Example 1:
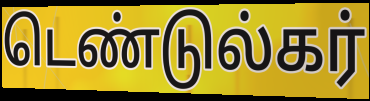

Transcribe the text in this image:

டெண்டுல்கர்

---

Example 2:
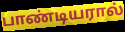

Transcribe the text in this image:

பாண்டியரால்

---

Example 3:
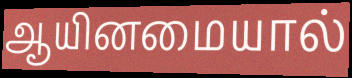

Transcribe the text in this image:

ஆயினமையால்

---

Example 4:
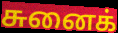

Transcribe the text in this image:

சுனைக்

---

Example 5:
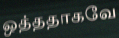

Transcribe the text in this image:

ஒத்ததாகவே